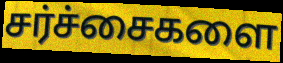
சர்ச்சைகளை